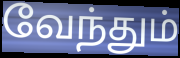
வேந்தும்